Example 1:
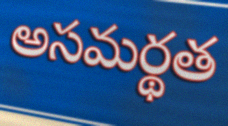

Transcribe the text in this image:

అసమర్థత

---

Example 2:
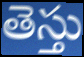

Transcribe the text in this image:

తెస్తు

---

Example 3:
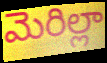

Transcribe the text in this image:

మెరిల్లా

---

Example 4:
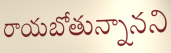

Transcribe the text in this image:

రాయబోతున్నానని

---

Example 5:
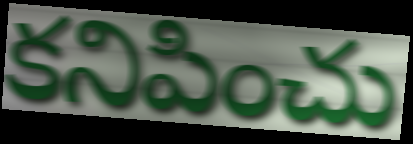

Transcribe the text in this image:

కనిపించు